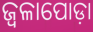
ଜ୍ୱଳାପୋଡ଼ା